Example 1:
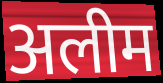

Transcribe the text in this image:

अलीम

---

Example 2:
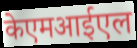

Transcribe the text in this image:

केएमआईएल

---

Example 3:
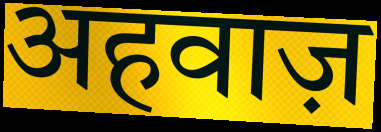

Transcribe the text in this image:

अहवाज़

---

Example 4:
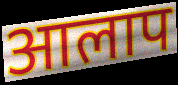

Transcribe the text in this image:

आलाप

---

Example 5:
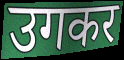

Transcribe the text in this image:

उगकर